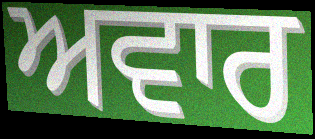
ਅਵਾਰ